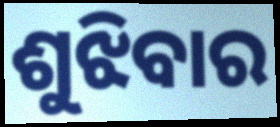
ଶୁଝିବାର